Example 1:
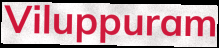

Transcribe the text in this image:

Viluppuram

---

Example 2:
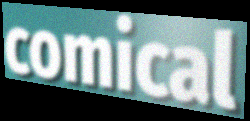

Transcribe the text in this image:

comical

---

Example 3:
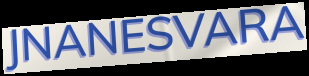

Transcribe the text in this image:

JNANESVARA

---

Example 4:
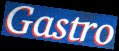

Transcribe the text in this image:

Gastro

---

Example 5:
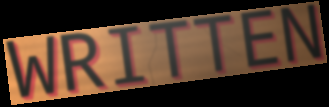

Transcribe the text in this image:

WRITTEN